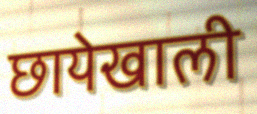
छायेखाली